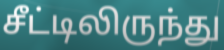
சீட்டிலிருந்து